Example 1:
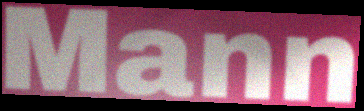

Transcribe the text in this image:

Mann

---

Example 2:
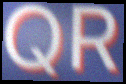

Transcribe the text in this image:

QR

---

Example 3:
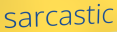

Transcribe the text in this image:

sarcastic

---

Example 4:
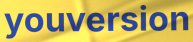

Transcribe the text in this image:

youversion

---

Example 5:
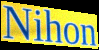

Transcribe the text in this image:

Nihon